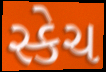
સ્કેચ